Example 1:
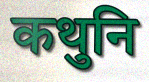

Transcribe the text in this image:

कथुनि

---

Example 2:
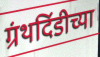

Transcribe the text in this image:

ग्रंथदिंडीच्या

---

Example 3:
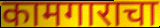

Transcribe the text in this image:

कामगाराचा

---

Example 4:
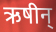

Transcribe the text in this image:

ऋषीन्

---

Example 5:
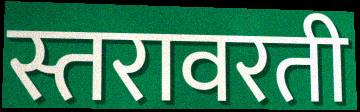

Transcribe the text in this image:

स्तरावरती